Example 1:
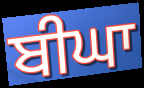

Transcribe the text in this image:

ਬੀਘਾ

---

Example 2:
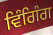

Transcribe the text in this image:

ਵਿੰਗਿੰਗ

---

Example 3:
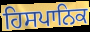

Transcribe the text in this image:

ਹਿਸਪਾਨਿਕ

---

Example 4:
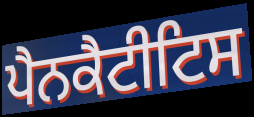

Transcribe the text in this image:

ਪੈਨਕੈਟੀਟਿਸ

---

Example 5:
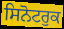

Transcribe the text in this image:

ਸਿਨੋਟਰੁਕ